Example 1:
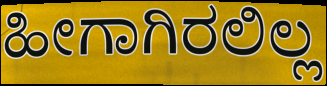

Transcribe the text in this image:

ಹೀಗಾಗಿರಲಿಲ್ಲ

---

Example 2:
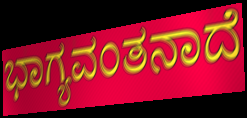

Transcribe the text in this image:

ಭಾಗ್ಯವಂತನಾದೆ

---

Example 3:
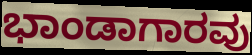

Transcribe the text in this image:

ಭಾಂಡಾಗಾರವು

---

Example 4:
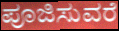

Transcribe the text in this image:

ಪೂಜಿಸುವರೆ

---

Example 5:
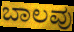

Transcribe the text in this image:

ಬಾಲವು